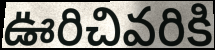
ఊరిచివరికి